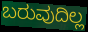
ಬರುವುದಿಲ್ಲ